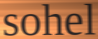
sohel